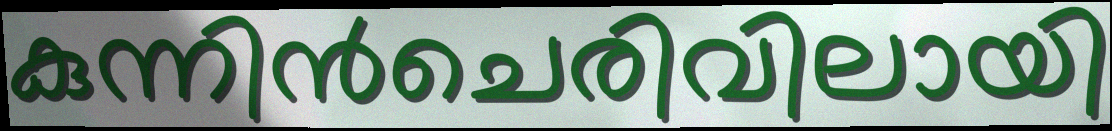
കുന്നിൻചെരിവിലായി